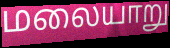
மலையாறு